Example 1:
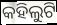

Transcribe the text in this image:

କହିଲୁଟି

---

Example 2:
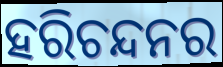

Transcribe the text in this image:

ହରିଚନ୍ଦନର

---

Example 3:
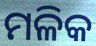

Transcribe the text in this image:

ମଳିକ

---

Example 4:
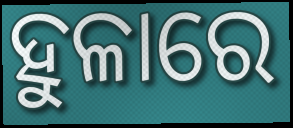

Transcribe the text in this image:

ହୁଳାରେ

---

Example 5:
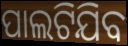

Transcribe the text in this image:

ପାଲଟିଯିବ